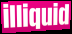
illiquid